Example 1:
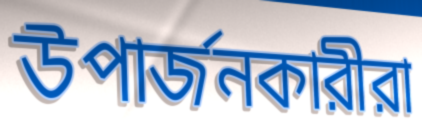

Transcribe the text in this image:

উপার্জনকারীরা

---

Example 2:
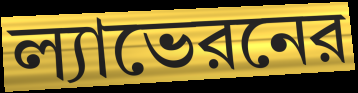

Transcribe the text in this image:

ল্যাভেরনের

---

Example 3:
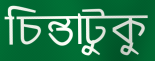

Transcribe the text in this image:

চিন্তাটুকু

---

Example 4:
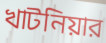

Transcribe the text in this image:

খাটনিয়ার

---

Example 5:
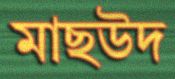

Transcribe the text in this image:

মাছউদ